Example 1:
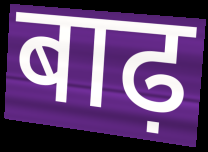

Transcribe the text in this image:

बाढ़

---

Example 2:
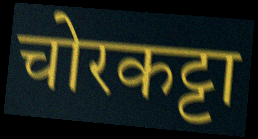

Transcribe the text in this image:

चोरकट्टा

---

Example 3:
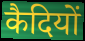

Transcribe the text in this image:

कैदियों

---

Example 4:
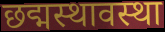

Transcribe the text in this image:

छद्मस्थावस्था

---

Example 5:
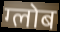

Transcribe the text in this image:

ग्लोब